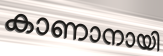
കാണാനായി